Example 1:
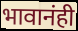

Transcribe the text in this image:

भावानंही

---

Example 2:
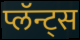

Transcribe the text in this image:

प्लॅन्ट्स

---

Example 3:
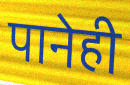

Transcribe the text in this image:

पानेही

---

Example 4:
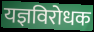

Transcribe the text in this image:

यज्ञविरोधक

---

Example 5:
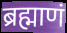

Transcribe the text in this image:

ब्रह्माणं